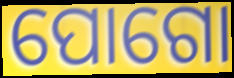
ପୋଗୋ